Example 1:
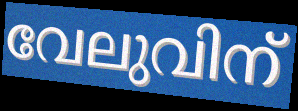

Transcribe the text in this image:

വേലുവിന്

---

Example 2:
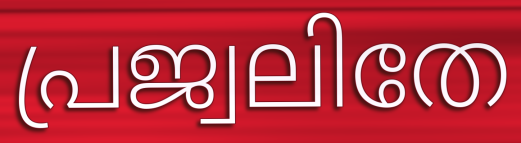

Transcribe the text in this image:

പ്രജ്വലിതേ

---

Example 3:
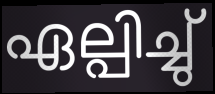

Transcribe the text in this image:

ഏല്പിച്ചു്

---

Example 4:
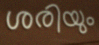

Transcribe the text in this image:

ശരിയും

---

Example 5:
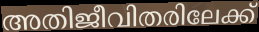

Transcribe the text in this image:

അതിജീവിതരിലേക്ക്